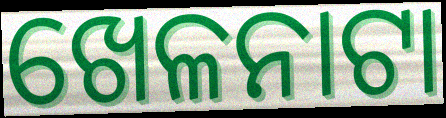
ଖେଳନାଟା